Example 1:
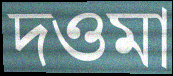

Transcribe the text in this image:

দওমা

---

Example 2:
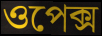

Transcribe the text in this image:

ওপেক্স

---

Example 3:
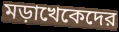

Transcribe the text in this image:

মড়াখেকেদের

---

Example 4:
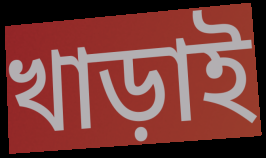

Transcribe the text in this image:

খাড়াই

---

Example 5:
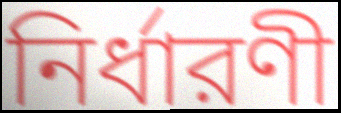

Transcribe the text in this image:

নির্ধারণী